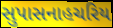
સુપાસનાહચરિય